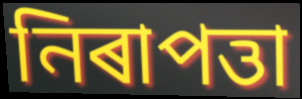
নিৰাপত্তা